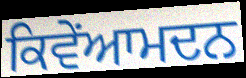
ਕਿਵੇਂਆਮਦਨ